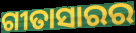
ଗୀତାସାରର